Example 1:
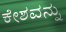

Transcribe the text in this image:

ಕೇಶವನ್ನು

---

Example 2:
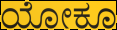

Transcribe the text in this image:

ಯೋಕೂ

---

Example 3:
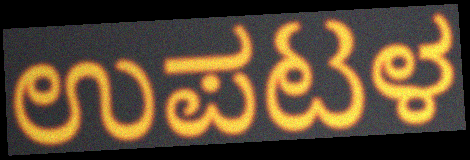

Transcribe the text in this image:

ಉಪಟಳ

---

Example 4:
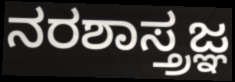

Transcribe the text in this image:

ನರಶಾಸ್ತ್ರಜ್ಞ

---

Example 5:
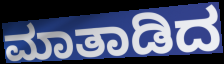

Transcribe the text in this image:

ಮಾತಾಡಿದ